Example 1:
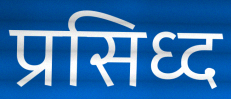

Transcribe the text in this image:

प्रसिध्द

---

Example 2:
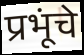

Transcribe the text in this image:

प्रभूंचे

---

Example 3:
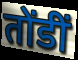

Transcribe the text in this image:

तोंडीं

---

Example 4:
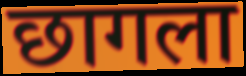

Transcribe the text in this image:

छागला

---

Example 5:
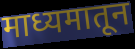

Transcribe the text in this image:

माध्यमातून